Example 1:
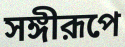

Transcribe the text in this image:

সঙ্গীরূপে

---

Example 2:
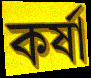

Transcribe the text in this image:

কর্ষা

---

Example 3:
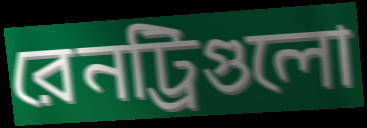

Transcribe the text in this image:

রেনট্রিগুলো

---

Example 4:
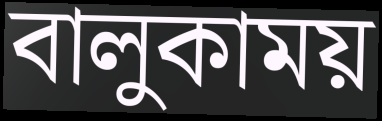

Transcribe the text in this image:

বালুকাময়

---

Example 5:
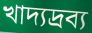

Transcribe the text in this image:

খাদ্যদ্রব্য